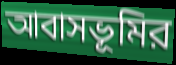
আবাসভূমির